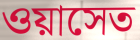
ওয়াসেত